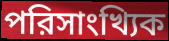
পরিসাংখ্যিক